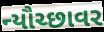
ન્યૌચ્છાવર